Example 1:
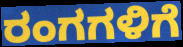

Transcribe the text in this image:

ರಂಗಗಳಿಗೆ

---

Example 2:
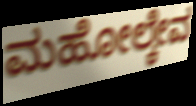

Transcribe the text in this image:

ಮಹೋಲ್ಕೇವ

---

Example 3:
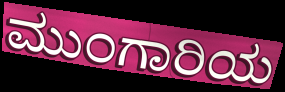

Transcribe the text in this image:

ಮುಂಗಾರಿಯ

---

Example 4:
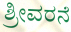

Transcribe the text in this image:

ಶ್ರೀವರನೆ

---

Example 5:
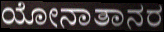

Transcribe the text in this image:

ಯೋನಾತಾನರ